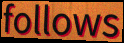
follows